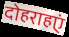
दोहराहएं